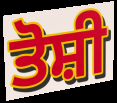
ਤੋਸ਼ੀ